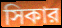
সিকার